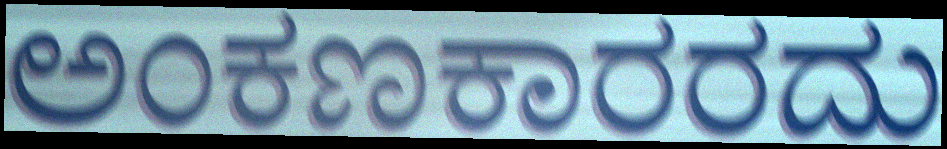
ಅಂಕಣಕಾರರದು